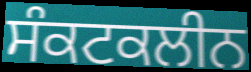
ਸੰਕਟਕਲੀਨ